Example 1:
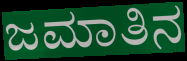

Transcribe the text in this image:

ಜಮಾತಿನ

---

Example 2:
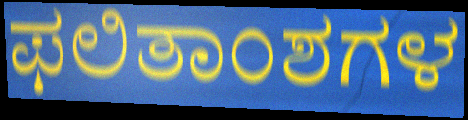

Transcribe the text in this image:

ಫಲಿತಾಂಶಗಳ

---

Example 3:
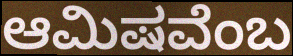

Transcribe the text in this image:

ಆಮಿಷವೆಂಬ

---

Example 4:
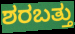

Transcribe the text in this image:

ಶರಬತ್ತು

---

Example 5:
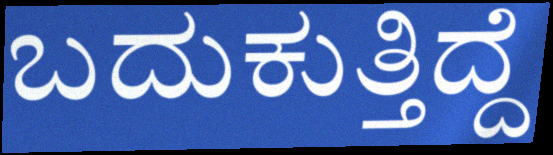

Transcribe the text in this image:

ಬದುಕುತ್ತಿದ್ದೆ